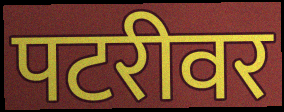
पटरीवर